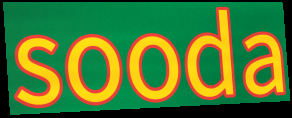
sooda